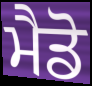
ਮੈਡੋ